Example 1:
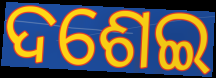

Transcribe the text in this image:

ଦଶେଇ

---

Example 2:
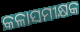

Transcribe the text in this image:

କଳାସମୀକ୍ଷକ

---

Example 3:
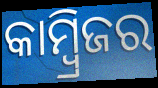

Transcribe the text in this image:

କାମ୍ବ୍ରିଜର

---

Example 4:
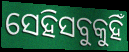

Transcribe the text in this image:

ସେହିସବୁକୁହିଁ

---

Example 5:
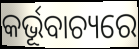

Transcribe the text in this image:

କର୍ଭୂବାଚ୍ୟରେ